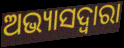
ଅଭ୍ୟାସଦ୍ୱାରା